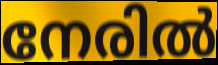
നേരിൽ